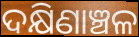
ଦକ୍ଷିଣାଞ୍ଚଳ